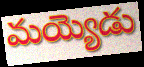
మయ్యెడు